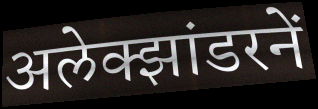
अलेक्झांडरनें